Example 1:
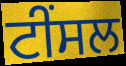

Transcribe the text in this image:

ਟੀਂਸਲ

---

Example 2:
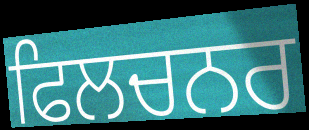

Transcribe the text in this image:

ਫਿਲਚਨਰ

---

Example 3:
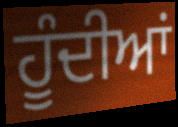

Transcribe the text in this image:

ਹੂੰਦੀਆਂ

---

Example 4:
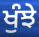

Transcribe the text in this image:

ਖੁੰਝੇ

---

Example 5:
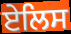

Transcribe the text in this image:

ਏਲਿਸ